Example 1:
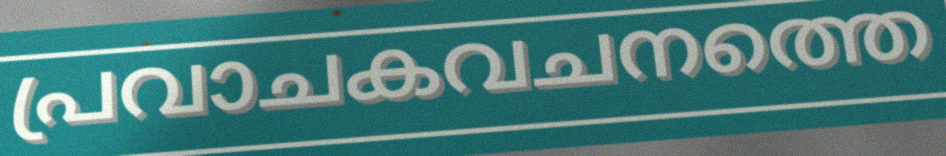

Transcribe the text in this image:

പ്രവാചകവചനത്തെ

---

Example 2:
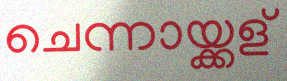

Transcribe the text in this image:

ചെന്നായ്ക്കള്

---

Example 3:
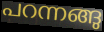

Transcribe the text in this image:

പറന്നങ്ങു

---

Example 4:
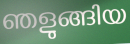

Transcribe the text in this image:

ഞളുങ്ങിയ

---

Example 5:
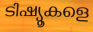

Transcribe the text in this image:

ടിഷ്യൂകളെ